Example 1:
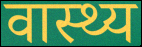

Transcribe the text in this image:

वास्थ्य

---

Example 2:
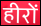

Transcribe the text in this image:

हीरों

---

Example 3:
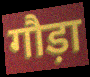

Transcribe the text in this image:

गौड़ा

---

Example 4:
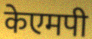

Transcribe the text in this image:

केएमपी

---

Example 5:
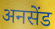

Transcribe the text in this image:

अनसेंड